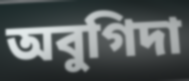
অবুগিদা